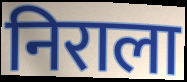
निराला